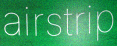
airstrip